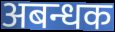
अबन्धक